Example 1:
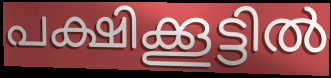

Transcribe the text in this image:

പക്ഷിക്കൂട്ടിൽ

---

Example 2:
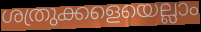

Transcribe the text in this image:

ശത്രുക്കളെയെല്ലാം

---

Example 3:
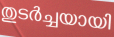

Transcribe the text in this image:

തുടർച്ചയായി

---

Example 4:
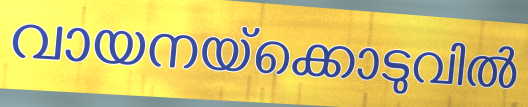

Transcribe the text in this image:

വായനയ്‌ക്കൊടുവിൽ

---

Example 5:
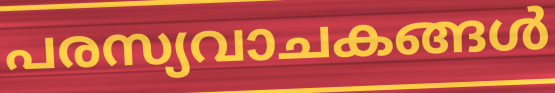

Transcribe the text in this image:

പരസ്യവാചകങ്ങൾ